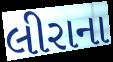
લીરાના